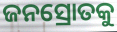
ଜନସ୍ରୋତକୁ